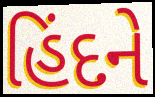
હિંદને